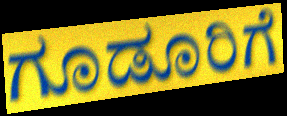
ಗೂಡೂರಿಗೆ